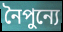
নৈপুন্যে